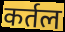
कर्तल